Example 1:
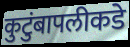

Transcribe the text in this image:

कुटुंबापलीकडे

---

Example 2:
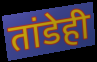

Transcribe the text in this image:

तांडेही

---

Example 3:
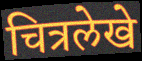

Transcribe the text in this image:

चित्रलेखे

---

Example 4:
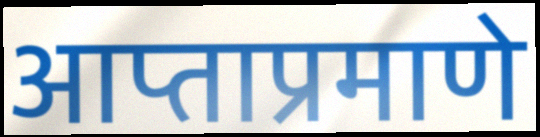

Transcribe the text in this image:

आप्ताप्रमाणे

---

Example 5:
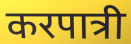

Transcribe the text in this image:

करपात्री